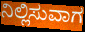
ನಿಲ್ಲಿಸುವಾಗ